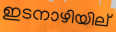
ഇടനാഴിയില്